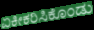
ಏಕೀಕರಿಸಿಕೊಂಡು